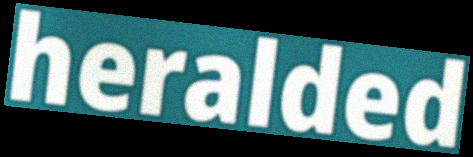
heralded